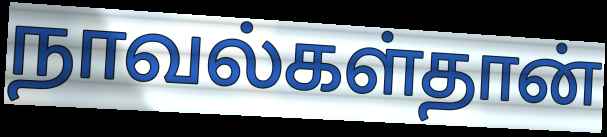
நாவல்கள்தான்